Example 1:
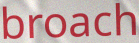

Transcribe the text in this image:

broach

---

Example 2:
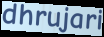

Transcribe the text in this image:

dhrujari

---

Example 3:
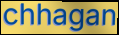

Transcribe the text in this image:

chhagan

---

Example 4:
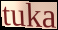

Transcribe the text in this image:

tuka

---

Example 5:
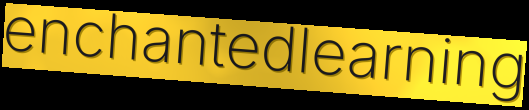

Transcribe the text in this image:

enchantedlearning